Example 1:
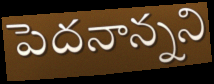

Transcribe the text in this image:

పెదనాన్నని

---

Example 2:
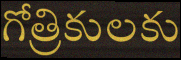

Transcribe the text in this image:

గోత్రికులకు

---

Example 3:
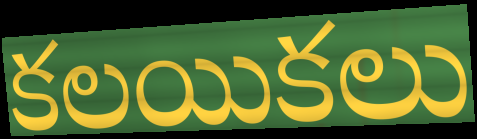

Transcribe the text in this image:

కలయికలు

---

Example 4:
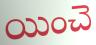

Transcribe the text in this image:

యించె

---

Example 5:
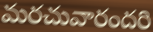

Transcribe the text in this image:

మరచువారందరి